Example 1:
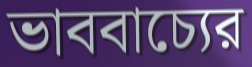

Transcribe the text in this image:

ভাববাচ্যের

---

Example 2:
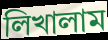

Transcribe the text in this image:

লিখালাম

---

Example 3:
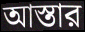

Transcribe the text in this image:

আস্তার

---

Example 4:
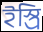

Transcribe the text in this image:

ইস্ত্রি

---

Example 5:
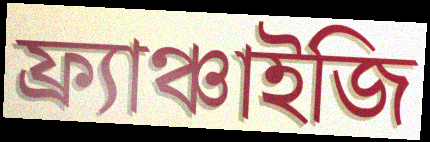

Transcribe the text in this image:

ফ্র্যাঞ্চাইজি